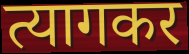
त्यागकर